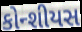
કોન્શીયસ